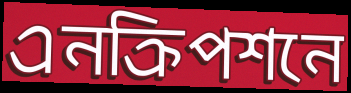
এনক্রিপশনে